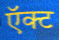
ऍक्ट